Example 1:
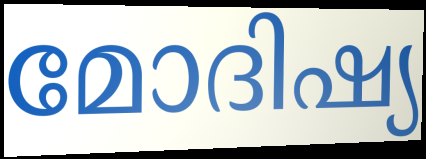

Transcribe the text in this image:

മോദിഷ്യ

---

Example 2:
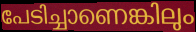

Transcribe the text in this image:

പേടിച്ചാണെങ്കിലും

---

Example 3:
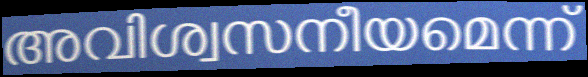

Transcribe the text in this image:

അവിശ്വസനീയമെന്ന്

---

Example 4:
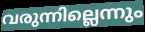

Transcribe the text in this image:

വരുന്നില്ലെന്നും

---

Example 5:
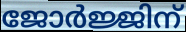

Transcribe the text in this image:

ജോർജ്ജിന്